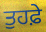
ਤੁਹਫ਼ੇ